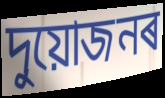
দুয়োজনৰ